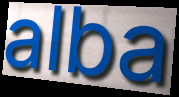
alba